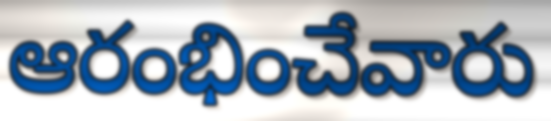
ఆరంభించేవారు